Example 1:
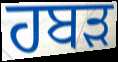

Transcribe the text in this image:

ਹਬੜ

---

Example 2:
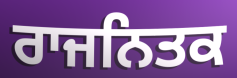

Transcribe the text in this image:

ਰਾਜਨਿਤਕ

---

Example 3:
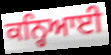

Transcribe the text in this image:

ਕਨ੍ਹਿਆਈ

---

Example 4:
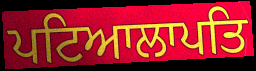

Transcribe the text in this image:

ਪਟਿਆਲਾਪਤਿ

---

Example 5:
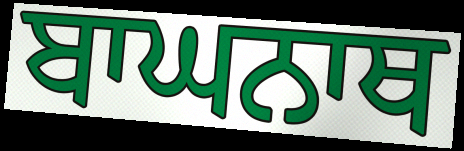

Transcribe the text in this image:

ਬਾਘਨਾਥ